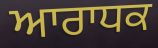
ਆਰਾਧਕ